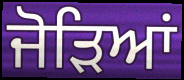
ਜੋੜਿਆਂ